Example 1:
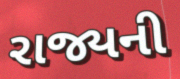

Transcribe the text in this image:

રાજ્યની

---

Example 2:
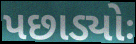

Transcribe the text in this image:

પછાડ્યોઃ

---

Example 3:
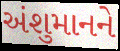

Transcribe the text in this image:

અંશુમાનને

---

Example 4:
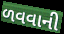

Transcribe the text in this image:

ળવવાની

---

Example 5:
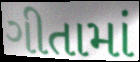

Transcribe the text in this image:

ગીતામાં